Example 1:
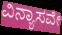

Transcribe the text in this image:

ವಿನ್ಯಾಸವೇ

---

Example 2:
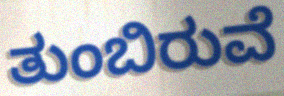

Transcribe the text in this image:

ತುಂಬಿರುವೆ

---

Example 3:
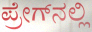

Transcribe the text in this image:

ಪ್ರೇಗ್‌ನಲ್ಲಿ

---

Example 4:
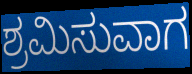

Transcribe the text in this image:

ಶ್ರಮಿಸುವಾಗ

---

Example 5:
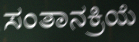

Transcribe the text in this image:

ಸಂತಾನಕ್ರಿಯೆ